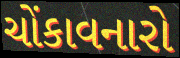
ચોંકાવનારો